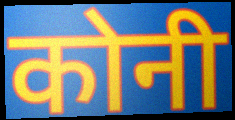
कोनी